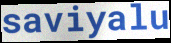
saviyalu